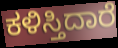
ಕಳಿಸ್ತಿದಾರೆ